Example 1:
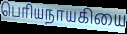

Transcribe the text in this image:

பெரியநாயகியை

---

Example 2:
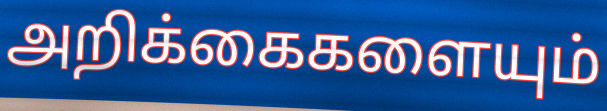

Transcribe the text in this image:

அறிக்கைகளையும்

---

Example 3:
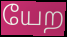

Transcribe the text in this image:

யேற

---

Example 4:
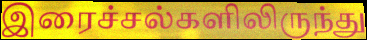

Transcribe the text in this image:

இரைச்சல்களிலிருந்து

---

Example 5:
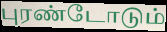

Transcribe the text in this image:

புரண்டோடும்